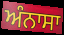
ਅੰਨਾਸਾ